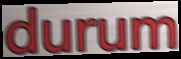
durum